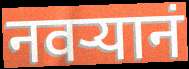
नवर्‍यानं